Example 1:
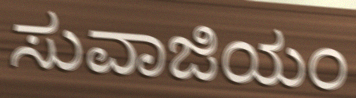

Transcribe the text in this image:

ಸುವಾಜಿಯಂ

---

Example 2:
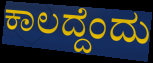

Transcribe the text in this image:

ಕಾಲದ್ದೆಂದು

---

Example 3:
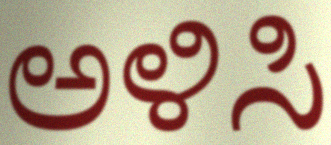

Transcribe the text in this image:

ಅಳಿಸಿ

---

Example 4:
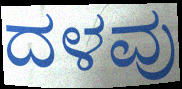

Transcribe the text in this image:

ದಳವು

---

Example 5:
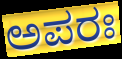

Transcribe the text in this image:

ಅಪರಃ